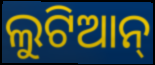
ଲୁଟିଆନ୍